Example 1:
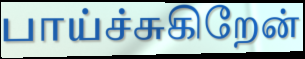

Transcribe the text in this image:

பாய்ச்சுகிறேன்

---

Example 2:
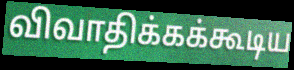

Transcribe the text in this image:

விவாதிக்கக்கூடிய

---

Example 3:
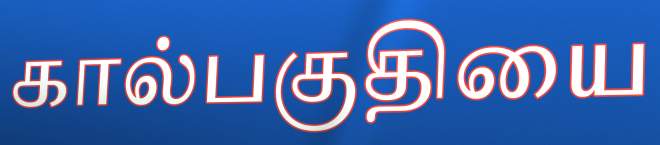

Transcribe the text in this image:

கால்பகுதியை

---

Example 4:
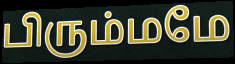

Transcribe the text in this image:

பிரும்மமே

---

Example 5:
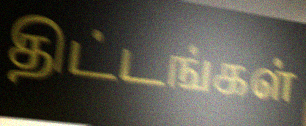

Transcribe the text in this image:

திட்டங்கள்